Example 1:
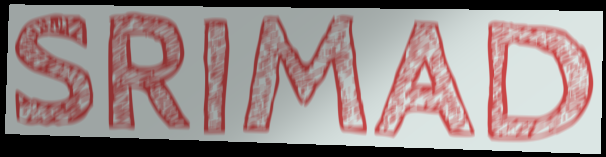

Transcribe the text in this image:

SRIMAD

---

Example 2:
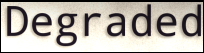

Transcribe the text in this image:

Degraded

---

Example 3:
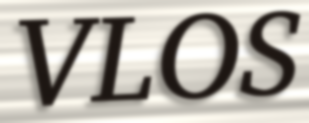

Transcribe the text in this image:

VLOS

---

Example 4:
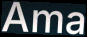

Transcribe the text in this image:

Ama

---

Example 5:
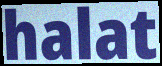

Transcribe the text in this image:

halat